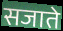
सजाते